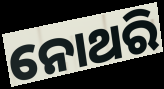
ନୋଥରି